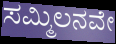
ಸಮ್ಮಿಲನವೇ